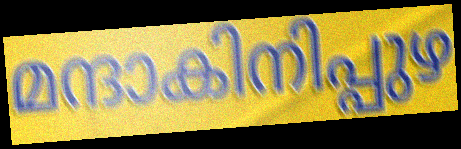
മന്ദാകിനിപ്പുഴ